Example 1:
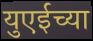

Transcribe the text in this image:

युएईच्या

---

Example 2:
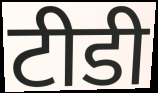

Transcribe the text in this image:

टीडी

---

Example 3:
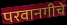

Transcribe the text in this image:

परवानगीचे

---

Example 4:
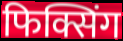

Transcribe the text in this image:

फिक्सिंग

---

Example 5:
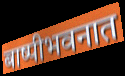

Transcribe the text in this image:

बाष्पीभवनात